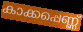
കാക്കപ്പെണ്ണ്